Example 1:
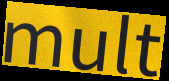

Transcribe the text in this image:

mult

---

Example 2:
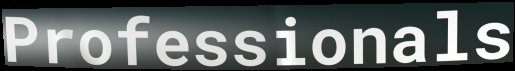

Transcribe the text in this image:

Professionals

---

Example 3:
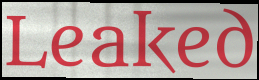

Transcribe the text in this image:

Leaked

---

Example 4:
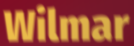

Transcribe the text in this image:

Wilmar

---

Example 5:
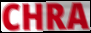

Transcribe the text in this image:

CHRA